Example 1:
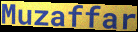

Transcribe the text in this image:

Muzaffar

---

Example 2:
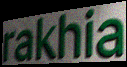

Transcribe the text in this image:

rakhia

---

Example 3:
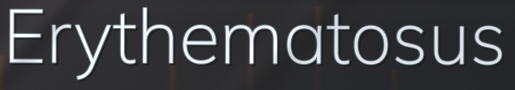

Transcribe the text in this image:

Erythematosus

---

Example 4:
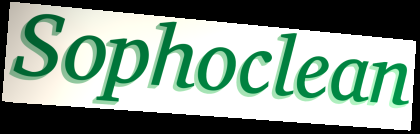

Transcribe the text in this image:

Sophoclean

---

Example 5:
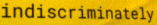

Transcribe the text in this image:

indiscriminately